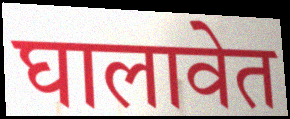
घालावेत